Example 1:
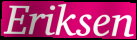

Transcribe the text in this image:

Eriksen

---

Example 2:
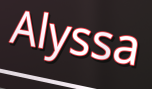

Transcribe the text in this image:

Alyssa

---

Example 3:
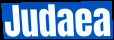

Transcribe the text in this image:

Judaea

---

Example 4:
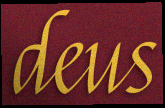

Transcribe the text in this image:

deus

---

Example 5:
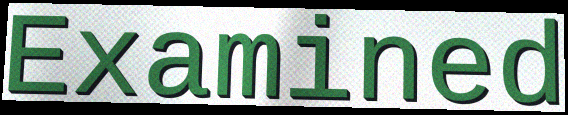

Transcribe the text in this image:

Examined